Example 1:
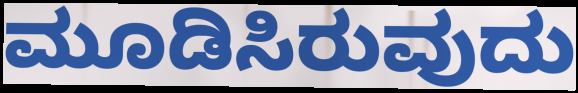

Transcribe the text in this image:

ಮೂಡಿಸಿರುವುದು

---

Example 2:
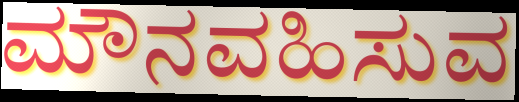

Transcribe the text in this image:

ಮೌನವಹಿಸುವ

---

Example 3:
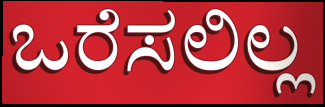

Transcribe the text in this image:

ಒರೆಸಲಿಲ್ಲ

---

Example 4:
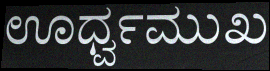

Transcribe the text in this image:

ಊರ್ಧ್ವಮುಖ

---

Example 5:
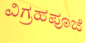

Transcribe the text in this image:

ವಿಗ್ರಹಪೂಜೆ